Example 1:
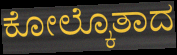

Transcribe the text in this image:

ಕೋಲ್ಕೊತಾದ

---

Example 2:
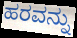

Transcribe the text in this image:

ಹರವನ್ನು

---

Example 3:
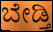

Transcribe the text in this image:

ಬೇಡ್ತಿ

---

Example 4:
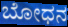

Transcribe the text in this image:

ಬೋಧನ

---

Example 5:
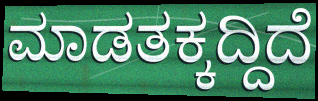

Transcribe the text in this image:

ಮಾಡತಕ್ಕದ್ದಿದೆ